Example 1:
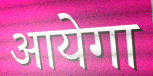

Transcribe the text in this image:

आयेगा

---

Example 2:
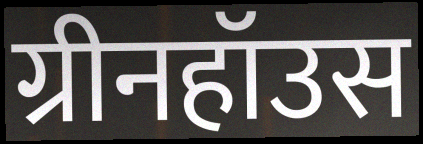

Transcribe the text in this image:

ग्रीनहॉउस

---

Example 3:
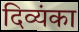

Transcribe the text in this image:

दिव्यंका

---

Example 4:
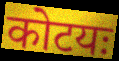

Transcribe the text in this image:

कोटयः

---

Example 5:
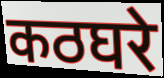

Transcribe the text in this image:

कठघरे